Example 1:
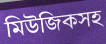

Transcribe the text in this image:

মিউজিকসহ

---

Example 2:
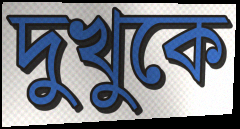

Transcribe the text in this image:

দুখুকে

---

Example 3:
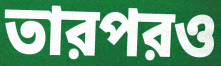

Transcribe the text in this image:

তারপরও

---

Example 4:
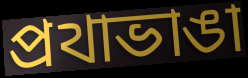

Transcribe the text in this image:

প্রথাভাঙা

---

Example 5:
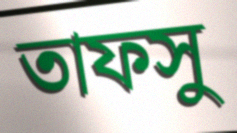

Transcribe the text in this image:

তাফসু